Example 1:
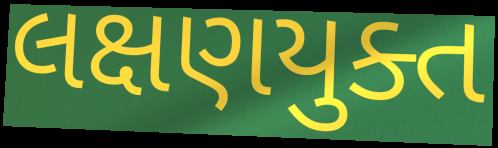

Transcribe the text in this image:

લક્ષણયુક્ત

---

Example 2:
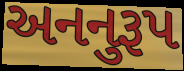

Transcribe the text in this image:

અનનુરૂપ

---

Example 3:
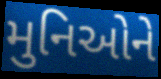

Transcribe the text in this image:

મુનિઓને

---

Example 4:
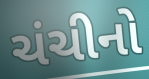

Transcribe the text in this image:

ચંચીનો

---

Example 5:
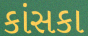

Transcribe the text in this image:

કાંસકા